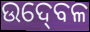
ଉଦ୍‍ବେଳ